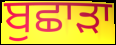
ਬੁਛਾੜਾ